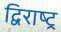
द्विराष्ट्र